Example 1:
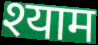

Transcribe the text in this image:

श्‍याम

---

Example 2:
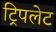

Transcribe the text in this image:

ट्रिपलेट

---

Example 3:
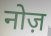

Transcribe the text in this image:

नोज़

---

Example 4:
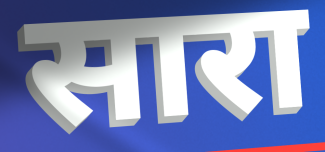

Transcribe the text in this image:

सारा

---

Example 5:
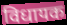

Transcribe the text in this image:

विधायक